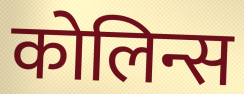
कोलिन्स